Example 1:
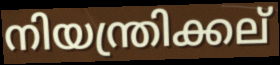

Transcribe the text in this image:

നിയന്ത്രിക്കല്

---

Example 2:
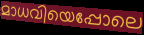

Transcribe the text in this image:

മാധവിയെപ്പോലെ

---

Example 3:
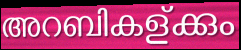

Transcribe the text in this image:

അറബികള്ക്കും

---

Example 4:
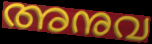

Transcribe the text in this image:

അനുവ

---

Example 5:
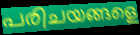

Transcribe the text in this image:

പരിചയങ്ങളെ